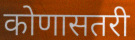
कोणासतरी